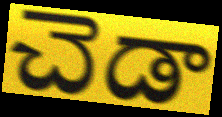
చెడా